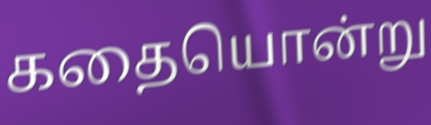
கதையொன்று